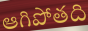
ఆగిపోతది